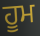
ਹੂਮ